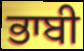
ਭਾਬੀ